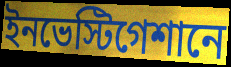
ইনভেস্টিগেশানে